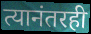
त्यानंतरही